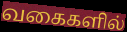
வகைகளில்